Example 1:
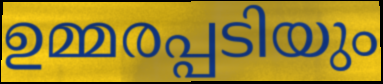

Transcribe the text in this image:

ഉമ്മരപ്പടിയും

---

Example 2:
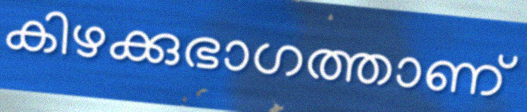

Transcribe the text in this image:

കിഴക്കുഭാഗത്താണ്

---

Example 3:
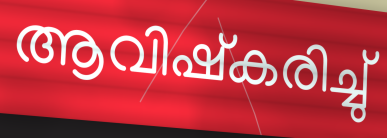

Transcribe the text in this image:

ആവിഷ്കരിച്ചു്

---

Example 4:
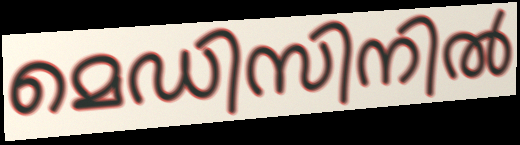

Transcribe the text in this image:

മെഡിസിനിൽ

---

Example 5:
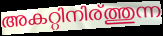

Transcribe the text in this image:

അകറ്റിനിര്ത്തുന്ന